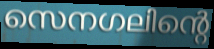
സെനഗലിന്റെ